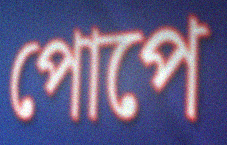
পোপে